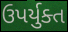
ઉપર્યુક્ત